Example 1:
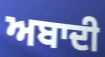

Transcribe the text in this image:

ਅਬਾਦੀ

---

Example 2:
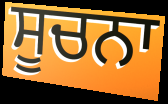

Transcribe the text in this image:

ਸੂਚਨਾ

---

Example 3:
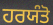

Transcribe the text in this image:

ਹਰਯੰਤੋ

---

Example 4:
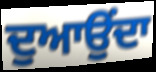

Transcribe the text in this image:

ਦੁਆਉਂਦਾ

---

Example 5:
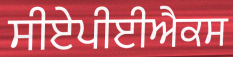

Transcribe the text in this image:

ਸੀਏਪੀਈਐਕਸ